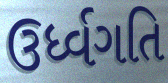
ઉર્ધ્વગતિ